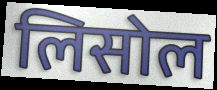
लिसोल